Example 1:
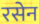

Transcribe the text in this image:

रसेन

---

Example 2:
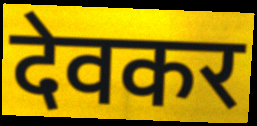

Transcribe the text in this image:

देवकर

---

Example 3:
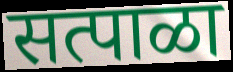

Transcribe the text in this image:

सत्पाळा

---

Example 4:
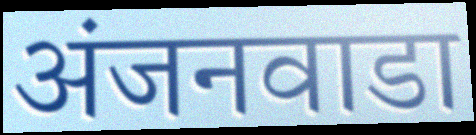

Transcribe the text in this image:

अंजनवाडा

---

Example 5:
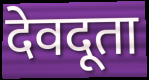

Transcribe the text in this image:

देवदूता